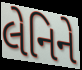
લેનિને